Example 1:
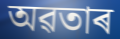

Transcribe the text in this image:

অৱতাৰ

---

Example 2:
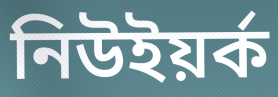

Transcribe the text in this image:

নিউইয়ৰ্ক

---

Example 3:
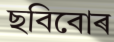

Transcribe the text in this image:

ছবিবোৰ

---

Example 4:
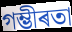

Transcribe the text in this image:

গম্ভীৰতা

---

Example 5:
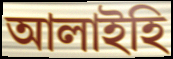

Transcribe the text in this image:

আলাইহি